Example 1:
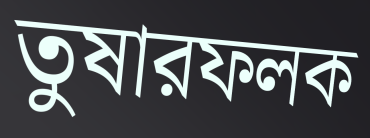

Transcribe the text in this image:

তুষারফলক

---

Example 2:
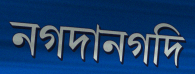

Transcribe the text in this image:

নগদানগদি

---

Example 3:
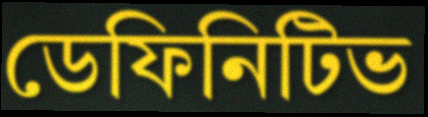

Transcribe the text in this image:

ডেফিনিটিভ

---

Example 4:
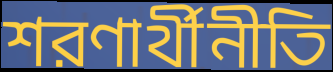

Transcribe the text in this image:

শরণার্থীনীতি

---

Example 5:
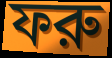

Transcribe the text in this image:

ফরু